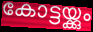
കോട്ടയ്ക്കും